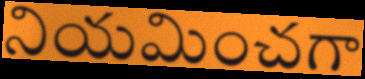
నియమించగా